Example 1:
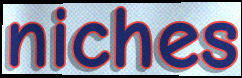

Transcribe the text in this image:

niches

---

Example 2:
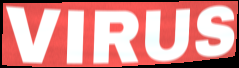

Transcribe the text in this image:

VIRUS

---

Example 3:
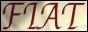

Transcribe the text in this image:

FIAT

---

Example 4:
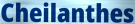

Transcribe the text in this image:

Cheilanthes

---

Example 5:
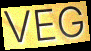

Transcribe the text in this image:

VEG